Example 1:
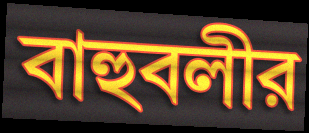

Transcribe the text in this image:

বাহুবলীর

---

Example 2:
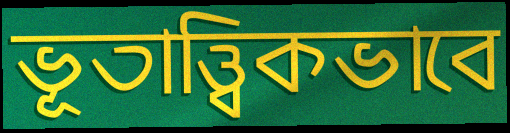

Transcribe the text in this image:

ভূতাত্ত্বিকভাবে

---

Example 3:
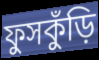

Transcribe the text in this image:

ফুসকুঁড়ি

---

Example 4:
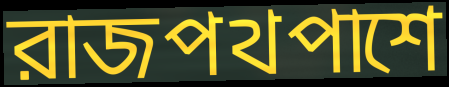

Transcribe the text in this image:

রাজপথপাশে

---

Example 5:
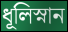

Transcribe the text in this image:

ধূলিস্নান